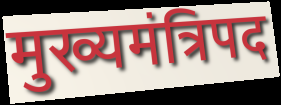
मुख्यमंत्रिपद